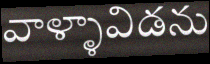
వాళ్ళావిడను